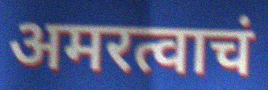
अमरत्वाचं